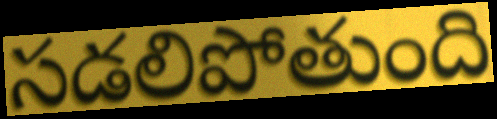
సడలిపోతుంది